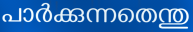
പാർക്കുന്നതെന്തു